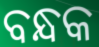
ବନ୍ଧକ